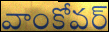
వాంకోవర్